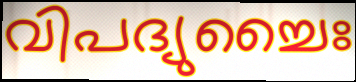
വിപദ്യുച്ചൈഃ